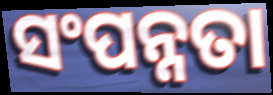
ସଂପନ୍ନତା